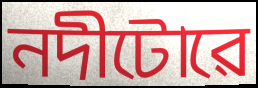
নদীটোৱে